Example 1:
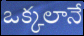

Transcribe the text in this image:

ఒక్కలానే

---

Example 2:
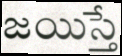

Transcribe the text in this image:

జయిస్తే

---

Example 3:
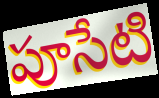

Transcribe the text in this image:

పూసేటి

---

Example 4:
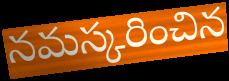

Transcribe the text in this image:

నమస్కరించిన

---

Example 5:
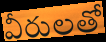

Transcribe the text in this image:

వీరులతో